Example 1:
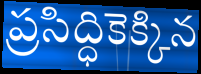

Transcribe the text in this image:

ప్రసిద్ధికెక్కిన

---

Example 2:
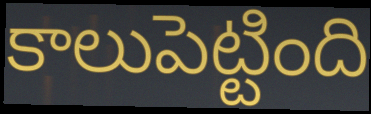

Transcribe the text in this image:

కాలుపెట్టింది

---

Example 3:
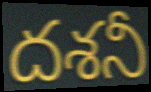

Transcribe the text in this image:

దశనీ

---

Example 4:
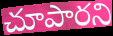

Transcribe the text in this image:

చూపారని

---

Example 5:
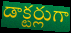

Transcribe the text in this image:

డాక్టర్లుగా